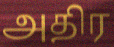
அதிர